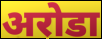
अरोडा